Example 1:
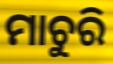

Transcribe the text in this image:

ମାଚୁରି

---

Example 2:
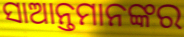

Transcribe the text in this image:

ସାଆନ୍ତମାନଙ୍କର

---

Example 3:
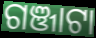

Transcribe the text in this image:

ଗଞ୍ଜାଟା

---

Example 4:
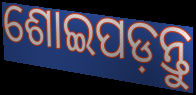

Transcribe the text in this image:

ଶୋଇପଡ଼ନ୍ତୁ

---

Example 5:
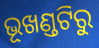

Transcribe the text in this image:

ଭୂଖଣ୍ଡଟିରୁ